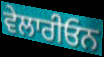
ਵੇਲਾਰੀਓਨ